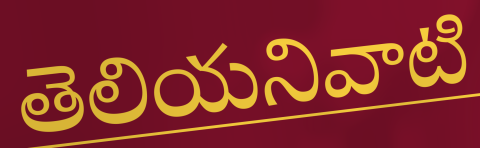
తెలియనివాటి